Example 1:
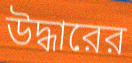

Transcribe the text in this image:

উদ্ধারের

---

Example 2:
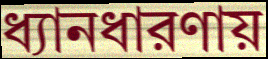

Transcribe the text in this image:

ধ্যানধারণায়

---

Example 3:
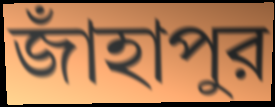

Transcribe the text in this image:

জাঁহাপুর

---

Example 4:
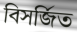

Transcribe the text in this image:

বিসর্জিত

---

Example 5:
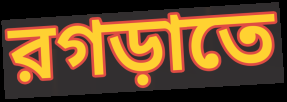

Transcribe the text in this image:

রগড়াতে